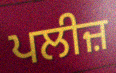
ਪਲੀਜ਼